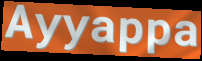
Ayyappa